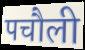
पचौली